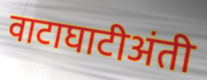
वाटाघाटीअंती